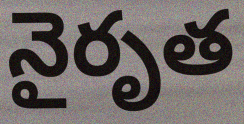
నైరృత